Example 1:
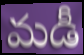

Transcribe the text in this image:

మడీ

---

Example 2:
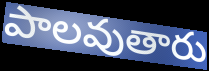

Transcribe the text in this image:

పాలవుతారు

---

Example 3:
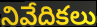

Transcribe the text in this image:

నివేదికలు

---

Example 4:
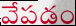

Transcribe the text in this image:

వేపడం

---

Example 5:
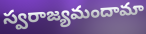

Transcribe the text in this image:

స్వరాజ్యమందామా